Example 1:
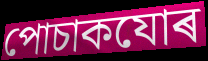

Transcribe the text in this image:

পোচাকযোৰ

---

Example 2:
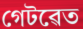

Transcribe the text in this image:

গেটৱেত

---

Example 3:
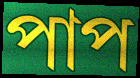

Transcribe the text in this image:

পাপ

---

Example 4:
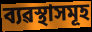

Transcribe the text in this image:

ব্যৱস্থাসমূহ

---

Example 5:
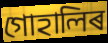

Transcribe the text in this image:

গোহালিৰ